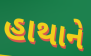
હાથાને